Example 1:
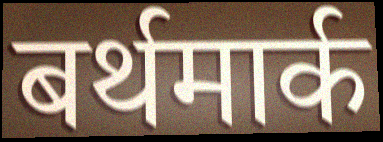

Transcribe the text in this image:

बर्थमार्क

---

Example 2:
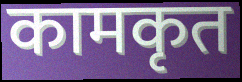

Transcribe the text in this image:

कामकृत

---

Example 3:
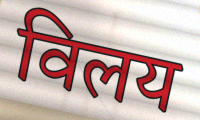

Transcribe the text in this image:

विलय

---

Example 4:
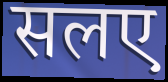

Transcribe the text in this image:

सलए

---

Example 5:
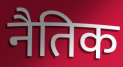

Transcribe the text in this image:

नैतिक